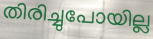
തിരിച്ചുപോയില്ല